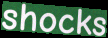
shocks